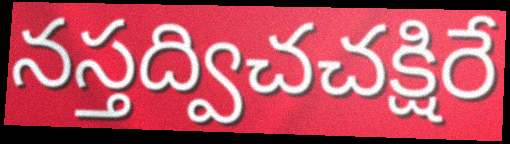
నస్తద్విచచక్షిరే